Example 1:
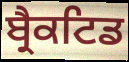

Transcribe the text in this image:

ਬ੍ਰੈਕਟਿਡ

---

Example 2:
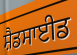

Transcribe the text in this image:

ਸ਼ੈਡਸਾਈਡ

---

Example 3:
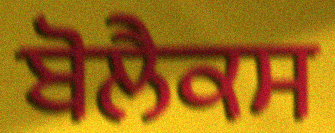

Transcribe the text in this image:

ਬੋਲੈਕਸ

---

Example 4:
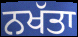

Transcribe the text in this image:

ਨਖੱਤਾ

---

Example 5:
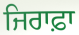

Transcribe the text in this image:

ਜਿਰਾਫ਼ਾ